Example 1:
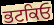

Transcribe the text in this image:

ਭਟਕਿਓ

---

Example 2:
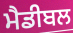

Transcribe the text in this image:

ਮੈਡੀਬਲ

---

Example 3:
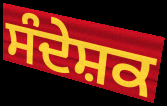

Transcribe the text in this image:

ਸੰਦੇਸ਼ਕ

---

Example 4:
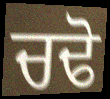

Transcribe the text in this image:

ਚਢੋ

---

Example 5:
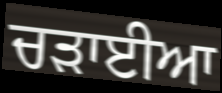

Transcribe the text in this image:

ਚੜਾਈਆ